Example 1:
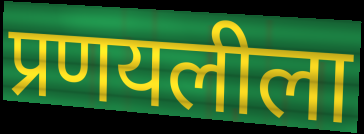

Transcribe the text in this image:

प्रणयलीला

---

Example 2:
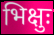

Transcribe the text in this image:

भिक्षुः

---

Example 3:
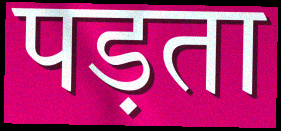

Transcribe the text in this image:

पड़ता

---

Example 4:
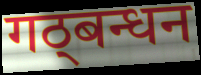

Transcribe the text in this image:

गठ्बन्धन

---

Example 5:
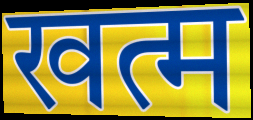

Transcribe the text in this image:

खत्म